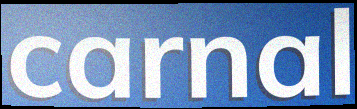
carnal